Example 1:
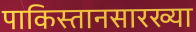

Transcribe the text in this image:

पाकिस्तानसारख्या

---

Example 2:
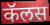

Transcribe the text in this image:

कॅलस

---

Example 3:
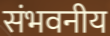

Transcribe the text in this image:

संभवनीय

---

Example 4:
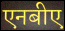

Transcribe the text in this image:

एनबीए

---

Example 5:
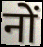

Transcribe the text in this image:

नों